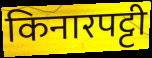
किनारपट्टी